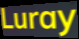
Luray